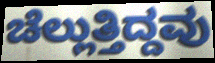
ಚೆಲ್ಲುತ್ತಿದ್ದವು